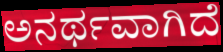
ಅನರ್ಥವಾಗಿದೆ